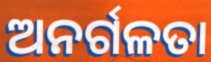
ଅନର୍ଗଳତା